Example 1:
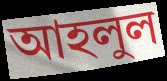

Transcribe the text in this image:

আহলুল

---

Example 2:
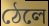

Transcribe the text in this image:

ঠেলে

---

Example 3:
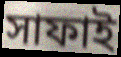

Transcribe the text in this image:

সাফাই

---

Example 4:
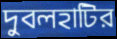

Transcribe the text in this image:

দুবলহাটির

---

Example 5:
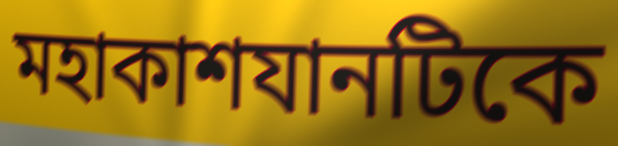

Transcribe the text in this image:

মহাকাশযানটিকে